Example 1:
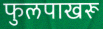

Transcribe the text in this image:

फुलपाखरू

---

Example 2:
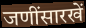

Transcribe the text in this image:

जणींसारखें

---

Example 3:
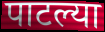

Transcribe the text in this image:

पाटल्या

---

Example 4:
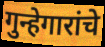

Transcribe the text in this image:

गुन्हेगारांचे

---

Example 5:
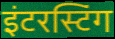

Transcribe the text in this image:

इंटरस्टिंग